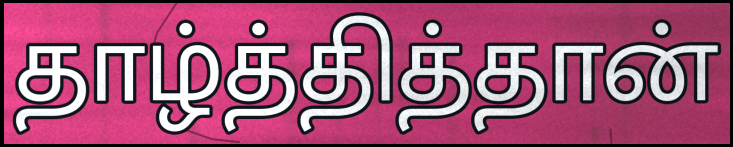
தாழ்த்தித்தான்